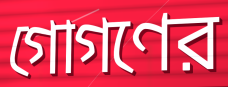
গোগণের